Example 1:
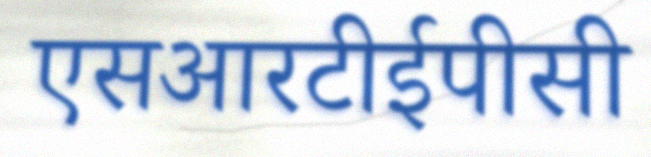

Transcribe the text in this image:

एसआरटीईपीसी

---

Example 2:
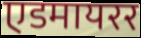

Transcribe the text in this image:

एडमायरर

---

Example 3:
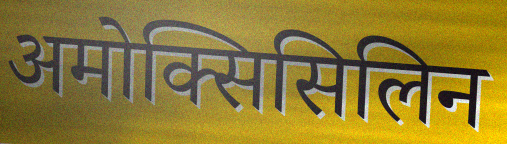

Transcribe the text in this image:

अमोक्सिसिलिन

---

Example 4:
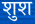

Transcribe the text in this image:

शुश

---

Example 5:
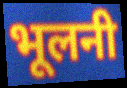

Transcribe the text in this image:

भूलनी